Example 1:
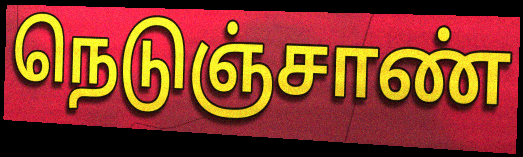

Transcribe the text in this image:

நெடுஞ்சாண்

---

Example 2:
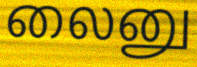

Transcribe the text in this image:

லைனு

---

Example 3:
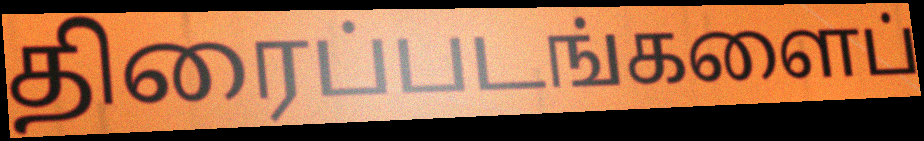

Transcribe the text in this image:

திரைப்படங்களைப்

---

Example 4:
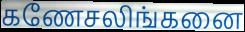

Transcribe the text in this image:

கணேசலிங்கனை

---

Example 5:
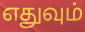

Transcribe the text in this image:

எதுவும்